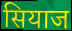
सियाज